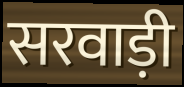
सरवाड़ी